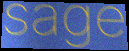
sage